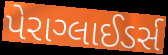
પેરાગ્લાઈડર્સ